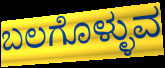
ಬಲಗೊಳ್ಳುವ